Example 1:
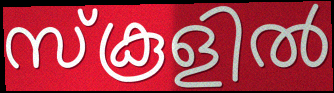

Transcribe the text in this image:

സ്കൂളിൽ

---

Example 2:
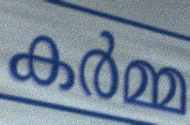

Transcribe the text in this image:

കർമ്മ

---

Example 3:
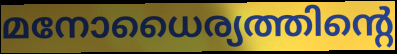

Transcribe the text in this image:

മനോധൈര്യത്തിന്റെ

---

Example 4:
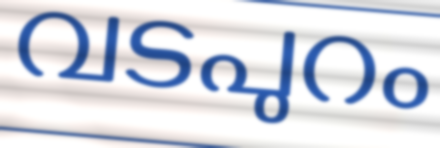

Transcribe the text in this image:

വടപുറം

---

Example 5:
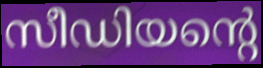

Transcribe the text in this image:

സീഡിയന്റെ